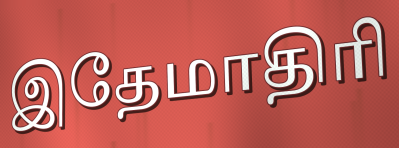
இதேமாதிரி